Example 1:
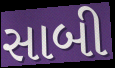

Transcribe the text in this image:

સાબી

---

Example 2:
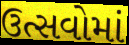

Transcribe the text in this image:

ઉત્સવોમાં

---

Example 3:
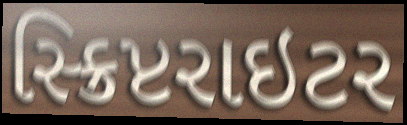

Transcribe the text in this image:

સ્ક્રિપ્ટરાઇટર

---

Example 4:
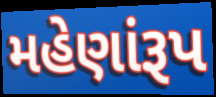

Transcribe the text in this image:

મહેણાંરૂપ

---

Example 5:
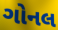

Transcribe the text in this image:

ગોનલ